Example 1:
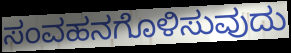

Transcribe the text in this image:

ಸಂವಹನಗೊಳಿಸುವುದು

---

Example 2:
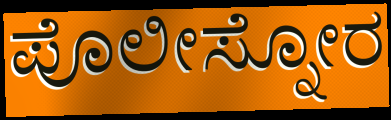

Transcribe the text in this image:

ಪೊಲೀಸ್ನೋರ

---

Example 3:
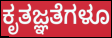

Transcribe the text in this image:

ಕೃತಜ್ಞತೆಗಳೂ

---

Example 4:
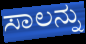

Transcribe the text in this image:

ಸಾಲನ್ನು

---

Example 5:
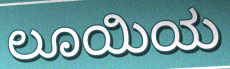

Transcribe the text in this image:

ಲೂಯಿಯ